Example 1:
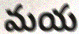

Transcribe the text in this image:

మయ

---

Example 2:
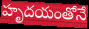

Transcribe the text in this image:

హృదయంతోనే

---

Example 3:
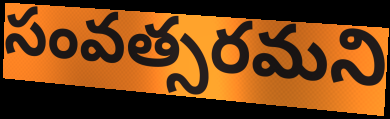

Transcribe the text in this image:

సంవత్సరమని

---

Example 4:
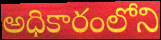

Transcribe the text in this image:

అధికారంలోని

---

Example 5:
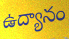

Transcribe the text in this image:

ఉద్యానం